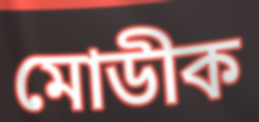
মোডীক